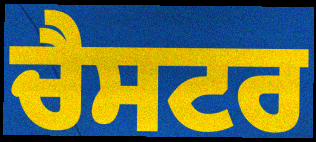
ਚੈਸਟਰ